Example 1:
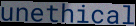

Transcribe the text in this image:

unethical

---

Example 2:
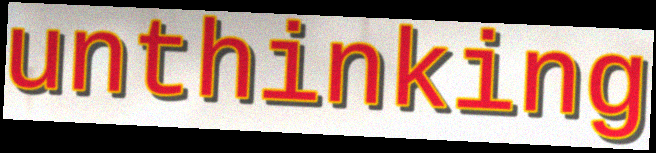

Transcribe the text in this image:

unthinking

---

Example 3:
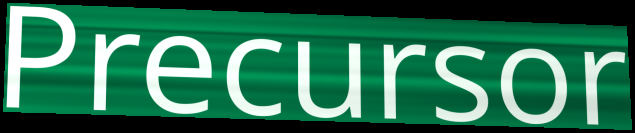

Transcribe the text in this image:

Precursor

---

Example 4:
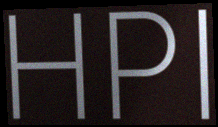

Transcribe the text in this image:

HPI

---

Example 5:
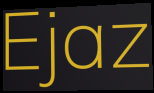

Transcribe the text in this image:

Ejaz